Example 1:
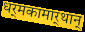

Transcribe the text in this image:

धर्मकामार्थान्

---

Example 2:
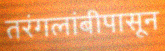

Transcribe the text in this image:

तरंगलांबीपासून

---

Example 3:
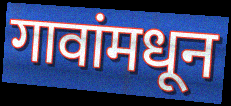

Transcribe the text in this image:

गावांमधून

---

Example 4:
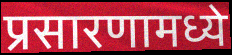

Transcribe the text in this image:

प्रसारणामध्ये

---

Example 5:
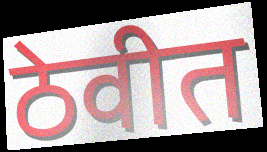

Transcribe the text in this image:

ठेवीत